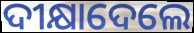
ଦୀକ୍ଷାଦେଲେ